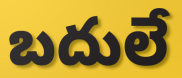
బదులే